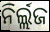
ନିର୍ଲ୍ଲଜ